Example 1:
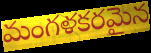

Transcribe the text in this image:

మంగళకరమైన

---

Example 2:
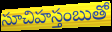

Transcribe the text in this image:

సూచిహస్తంబుతో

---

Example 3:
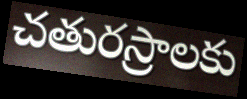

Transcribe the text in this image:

చతురస్రాలకు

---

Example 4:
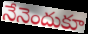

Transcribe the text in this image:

నేనెందుకూ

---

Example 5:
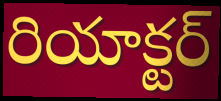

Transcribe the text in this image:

రియాక్టర్